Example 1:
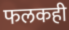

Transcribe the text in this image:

फलकही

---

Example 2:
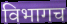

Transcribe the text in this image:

विभागच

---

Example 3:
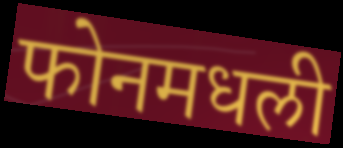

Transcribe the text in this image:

फोनमधली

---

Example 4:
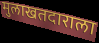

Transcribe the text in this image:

मुलाखतदाराला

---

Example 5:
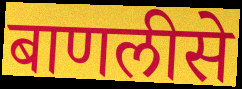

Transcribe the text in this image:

बाणलीसे